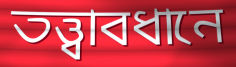
তত্ত্বাবধানে